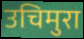
उचिमुरा